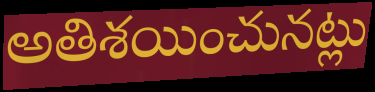
అతిశయించునట్లు